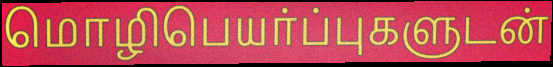
மொழிபெயர்ப்புகளுடன்